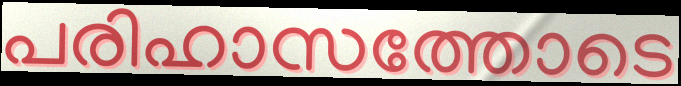
പരിഹാസത്തോടെ